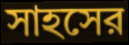
সাহসের